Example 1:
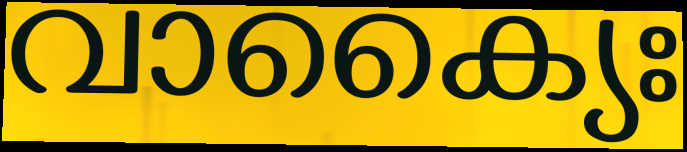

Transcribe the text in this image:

വാക്യൈഃ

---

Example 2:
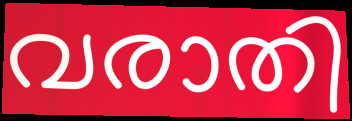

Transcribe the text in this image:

വരാതി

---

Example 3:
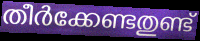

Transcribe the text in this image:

തീർക്കേണ്ടതുണ്ട്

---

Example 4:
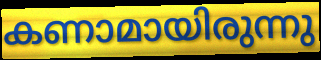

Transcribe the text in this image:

കണാമായിരുന്നു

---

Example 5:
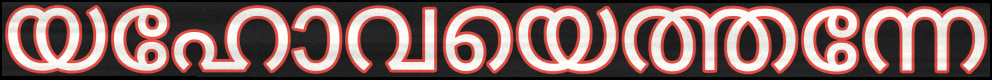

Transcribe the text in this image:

യഹോവയെത്തന്നേ